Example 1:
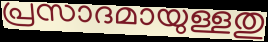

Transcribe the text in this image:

പ്രസാദമായുള്ളതു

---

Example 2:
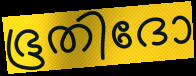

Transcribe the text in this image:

ഭൂതിദോ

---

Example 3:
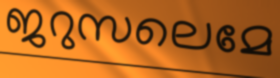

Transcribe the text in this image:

ജറുസലെമേ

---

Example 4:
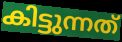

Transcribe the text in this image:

കിട്ടുന്നത്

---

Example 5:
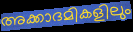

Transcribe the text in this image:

അക്കാദമികളിലും